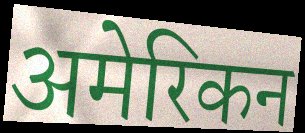
अमेरिकन